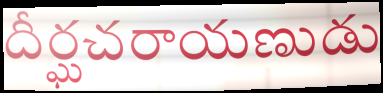
దీర్ఘచరాయణుడు